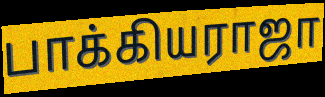
பாக்கியராஜா